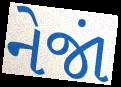
નેજાં